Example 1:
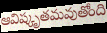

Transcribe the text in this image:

ఆవిష్కృతమవుతోంది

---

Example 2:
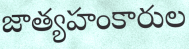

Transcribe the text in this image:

జాత్యహంకారుల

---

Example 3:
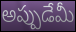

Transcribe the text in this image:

అప్పుడేమీ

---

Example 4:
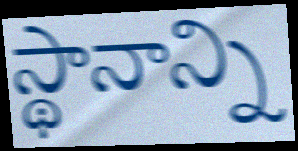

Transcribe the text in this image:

స్థానాన్ని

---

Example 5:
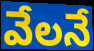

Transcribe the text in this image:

వేలనే